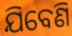
ଯିବେଣି